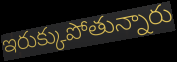
ఇరుక్కుపోతున్నారు